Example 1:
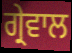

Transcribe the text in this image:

ਗ੍ਰੇਵਾਲ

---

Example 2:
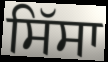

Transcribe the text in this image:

ਸਿੱਸਾ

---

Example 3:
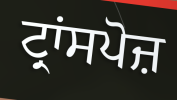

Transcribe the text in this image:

ਟ੍ਰਾਂਸਪੋਜ਼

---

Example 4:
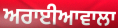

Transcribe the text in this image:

ਅਰਾਈਆਵਾਲਾ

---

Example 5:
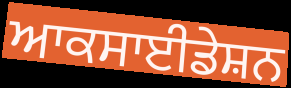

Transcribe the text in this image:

ਆਕਸਾਈਡੇਸ਼ਨ